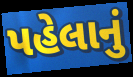
પહેલાનું